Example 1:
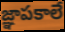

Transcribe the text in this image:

జ్ఞాపకాలే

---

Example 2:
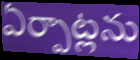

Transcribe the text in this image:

ఏర్పాట్లను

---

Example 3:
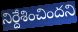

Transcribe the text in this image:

నిర్దేశించిందని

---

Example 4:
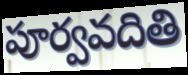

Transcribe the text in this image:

పూర్వవదితి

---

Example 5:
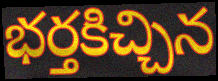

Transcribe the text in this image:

భర్తకిచ్చిన